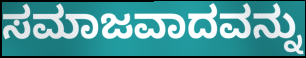
ಸಮಾಜವಾದವನ್ನು